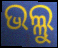
ଭଲ୍ଲୁ